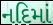
નદિમાં